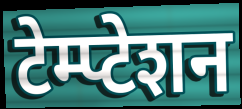
टेम्प्टेशन